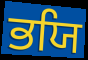
ਭਯਿ